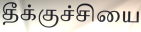
தீக்குச்சியை